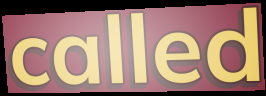
called